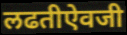
लढतीऐवजी